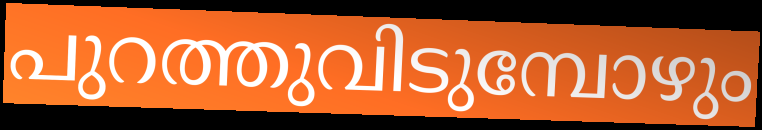
പുറത്തുവിടുമ്പോഴും